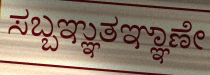
ಸಬ್ಬಞ್ಞುತಞ್ಞಾಣೇ